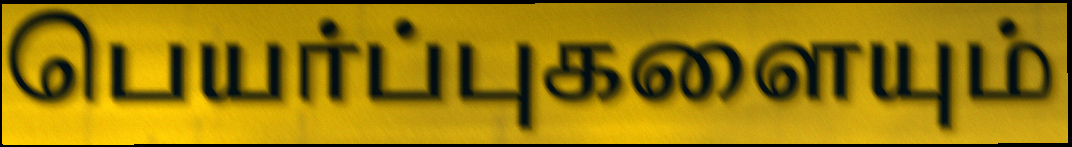
பெயர்ப்புகளையும்